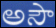
అసౌ